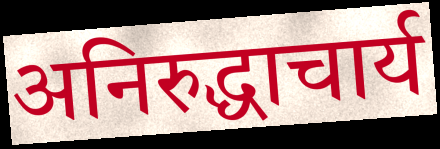
अनिरुद्धाचार्य